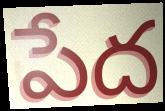
పేద